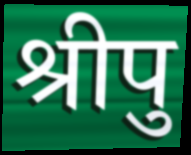
श्रीपु